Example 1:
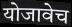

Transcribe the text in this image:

योजावेच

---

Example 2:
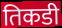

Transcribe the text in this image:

तिकडी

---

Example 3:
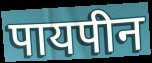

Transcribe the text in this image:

पायपीन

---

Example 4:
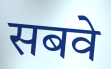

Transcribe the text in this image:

सबवे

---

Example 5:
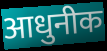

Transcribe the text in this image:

आधुनीक